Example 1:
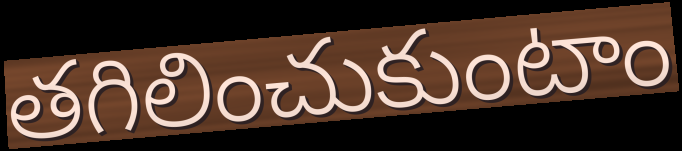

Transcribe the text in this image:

తగిలించుకుంటాం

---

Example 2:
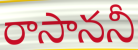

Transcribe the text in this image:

రాసాననీ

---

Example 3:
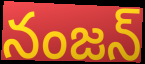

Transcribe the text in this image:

నంజన్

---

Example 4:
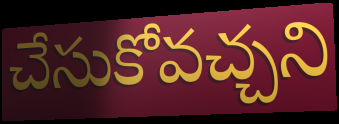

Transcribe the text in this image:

చేసుకోవచ్చని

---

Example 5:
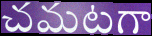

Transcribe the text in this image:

చమటగా